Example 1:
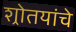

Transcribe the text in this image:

श्रोतयांचे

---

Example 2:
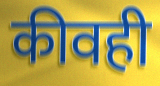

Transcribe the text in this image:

कीवही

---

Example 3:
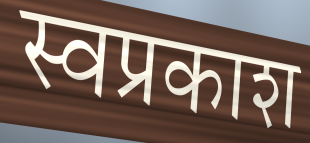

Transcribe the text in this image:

स्वप्रकाश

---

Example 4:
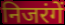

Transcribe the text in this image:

निजरंगें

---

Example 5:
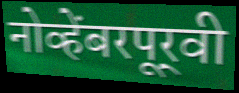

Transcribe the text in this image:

नोव्हेंबरपूर्वी